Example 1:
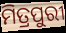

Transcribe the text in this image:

ମିତ୍ରପୁରୀ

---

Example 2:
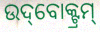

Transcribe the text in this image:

ଉଦ୍‌ବୋକ୍ଟ୍ରମ୍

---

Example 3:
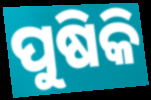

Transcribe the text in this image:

ପୁଷିକି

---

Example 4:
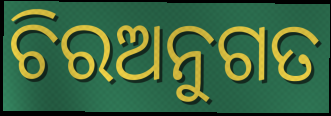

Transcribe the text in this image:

ଚିରଅନୁଗତ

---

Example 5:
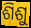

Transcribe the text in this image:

ଶିଶୁ